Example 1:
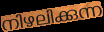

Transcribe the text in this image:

നിഴലിക്കുന്ന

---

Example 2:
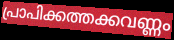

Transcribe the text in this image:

പ്രാപിക്കത്തക്കവണ്ണം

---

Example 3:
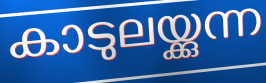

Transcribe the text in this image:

കാടുലയ്ക്കുന്ന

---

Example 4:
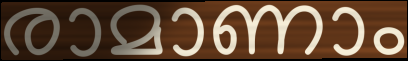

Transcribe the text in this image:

രാമാണാം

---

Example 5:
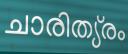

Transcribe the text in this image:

ചാരിത്യ്രം